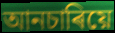
আনচাৰিয়ে